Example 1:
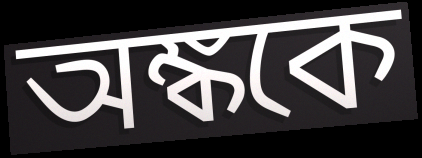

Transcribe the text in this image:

অঙ্ককে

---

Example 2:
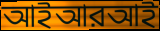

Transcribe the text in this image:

আইআরআই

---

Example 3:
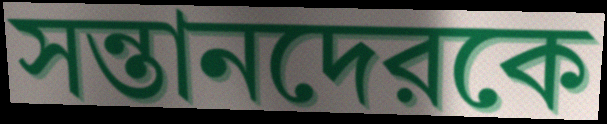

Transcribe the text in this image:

সন্তানদেরকে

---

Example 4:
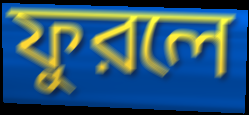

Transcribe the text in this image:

ফুরলে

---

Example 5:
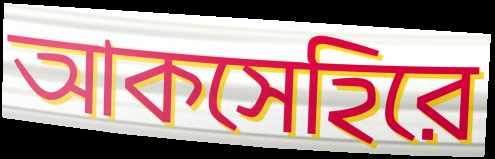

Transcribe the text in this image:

আকসেহিরে